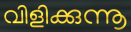
വിളിക്കുന്നൂ